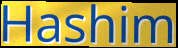
Hashim